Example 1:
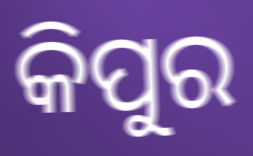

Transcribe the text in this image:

କିପୁର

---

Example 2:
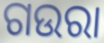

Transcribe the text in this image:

ଗଉରା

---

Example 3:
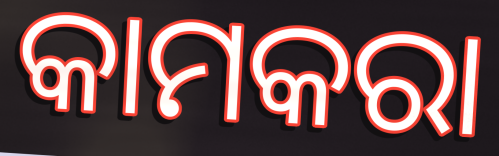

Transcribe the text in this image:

କାମକରା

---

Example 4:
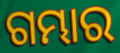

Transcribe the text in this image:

ଗମ୍ଭାର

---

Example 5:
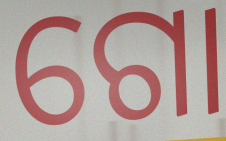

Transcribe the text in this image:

ଗୋ